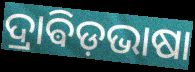
ଦ୍ରାଵିଡ଼ଭାଷା